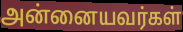
அன்னையவர்கள்